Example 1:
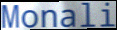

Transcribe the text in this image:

Monali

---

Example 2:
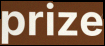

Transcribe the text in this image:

prize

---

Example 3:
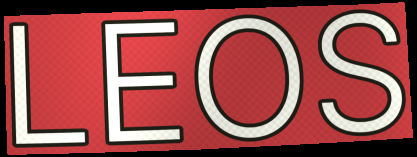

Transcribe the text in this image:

LEOS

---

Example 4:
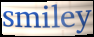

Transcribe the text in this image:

smiley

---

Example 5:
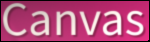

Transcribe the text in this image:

Canvas